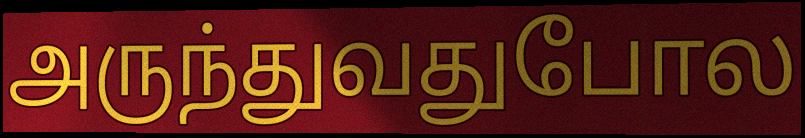
அருந்துவதுபோல